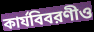
কার্যবিবরণীও